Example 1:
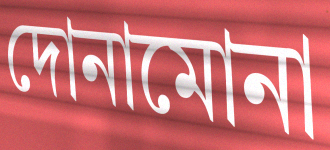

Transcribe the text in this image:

দোনামোনা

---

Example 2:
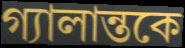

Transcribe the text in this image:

গ্যালান্তকে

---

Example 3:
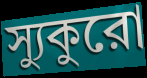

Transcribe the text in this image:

স্যুকুরো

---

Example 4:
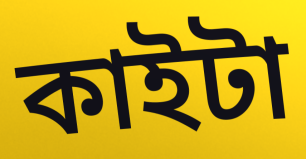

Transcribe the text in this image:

কাইটা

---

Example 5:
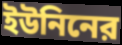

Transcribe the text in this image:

ইউনিনের